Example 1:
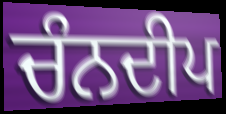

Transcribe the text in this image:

ਚੰਨਦੀਪ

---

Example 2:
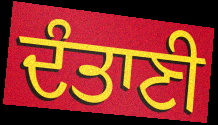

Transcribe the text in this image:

ਦੰਤਾਣੀ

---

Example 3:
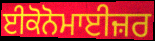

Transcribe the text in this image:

ਈਕੋਨੋਮਾਈਜ਼ਰ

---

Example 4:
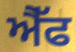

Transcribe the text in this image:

ਐੈੱਫ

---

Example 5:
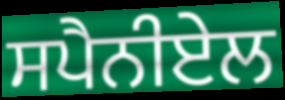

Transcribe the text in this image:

ਸਪੈਨੀਏਲ